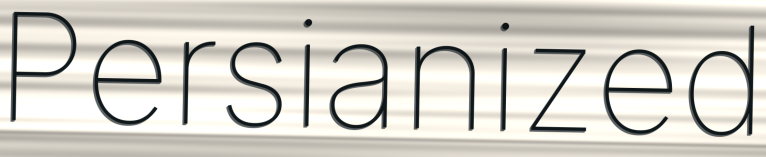
Persianized